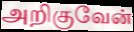
அறிகுவேன்